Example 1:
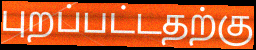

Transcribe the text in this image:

புறப்பட்டதற்கு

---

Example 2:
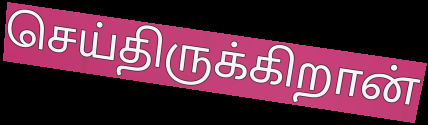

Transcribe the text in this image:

செய்திருக்கிறான்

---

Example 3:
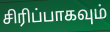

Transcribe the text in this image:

சிரிப்பாகவும்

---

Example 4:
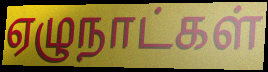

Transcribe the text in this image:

ஏழுநாட்கள்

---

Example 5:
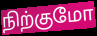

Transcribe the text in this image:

நிற்குமோ